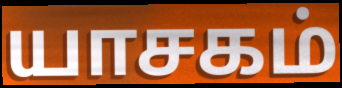
யாசகம்